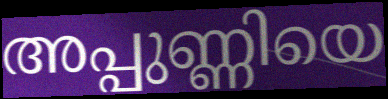
അപ്പുണ്ണിയെ